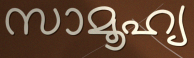
സാമൂഹ്യ